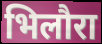
भिलौरा